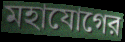
মহাযোগের